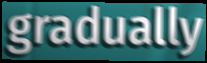
gradually